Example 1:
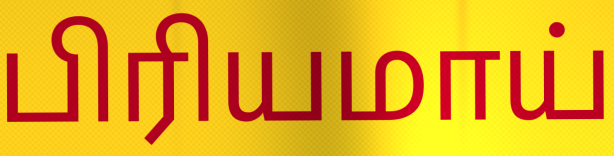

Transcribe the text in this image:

பிரியமாய்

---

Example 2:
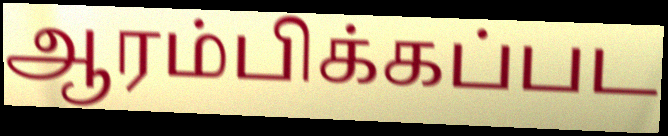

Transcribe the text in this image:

ஆரம்பிக்கப்பட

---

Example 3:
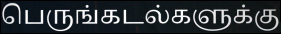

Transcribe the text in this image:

பெருங்கடல்களுக்கு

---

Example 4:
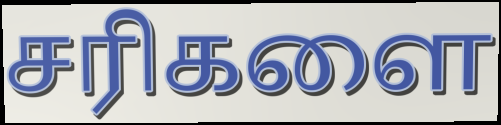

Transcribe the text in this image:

சரிகளை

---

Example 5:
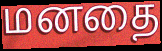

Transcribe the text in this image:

மனதை